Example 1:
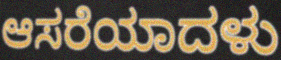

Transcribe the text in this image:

ಆಸರೆಯಾದಳು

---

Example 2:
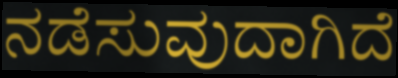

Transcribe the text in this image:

ನಡೆಸುವುದಾಗಿದೆ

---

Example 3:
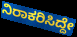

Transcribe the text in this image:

ನಿರಾಕರಿಸಿದ್ದೇ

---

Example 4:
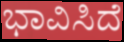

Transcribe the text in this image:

ಭಾವಿಸಿದೆ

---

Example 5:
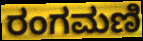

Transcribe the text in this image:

ರಂಗಮಣಿ